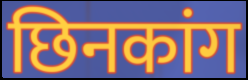
छिनकांग